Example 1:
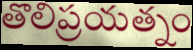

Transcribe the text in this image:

తొలిప్రయత్నం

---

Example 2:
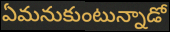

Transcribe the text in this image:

ఏమనుకుంటున్నాడో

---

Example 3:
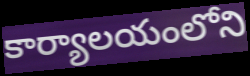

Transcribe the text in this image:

కార్యాలయంలోని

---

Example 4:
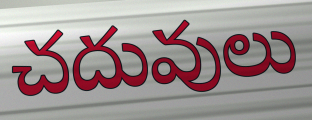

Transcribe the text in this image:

చదువులు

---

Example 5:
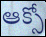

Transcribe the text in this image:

ఆక్సో